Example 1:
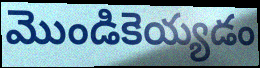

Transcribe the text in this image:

మొండికెయ్యడం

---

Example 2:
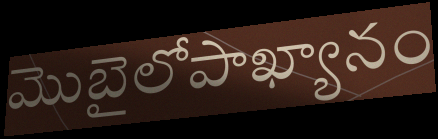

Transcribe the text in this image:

మొబైలోపాఖ్యానం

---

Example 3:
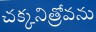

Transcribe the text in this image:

చక్కనిత్రోవను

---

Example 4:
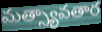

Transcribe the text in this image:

మత్స్యావతార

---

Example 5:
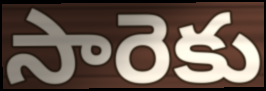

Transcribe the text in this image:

సారెకు